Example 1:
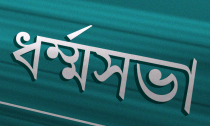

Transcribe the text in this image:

ধর্ম্মসভা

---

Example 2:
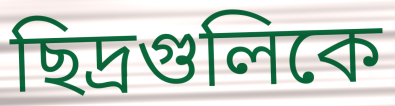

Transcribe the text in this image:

ছিদ্রগুলিকে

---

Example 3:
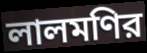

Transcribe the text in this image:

লালমণির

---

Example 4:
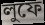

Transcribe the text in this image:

লুফে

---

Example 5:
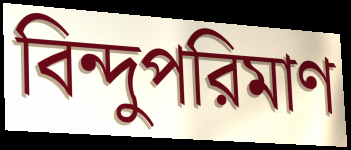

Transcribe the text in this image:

বিন্দুপরিমাণ